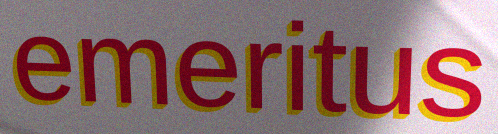
emeritus